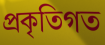
প্রকৃতিগত